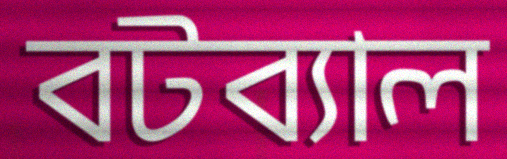
বটব্যাল